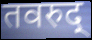
तवरुद्